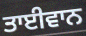
ਤਾਈਵਾਨ